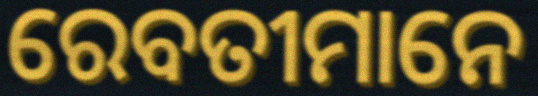
ରେବତୀମାନେ